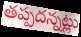
తప్పదన్నట్లు